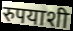
रुपयाशी